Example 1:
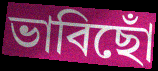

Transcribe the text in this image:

ভাবিছোঁ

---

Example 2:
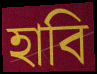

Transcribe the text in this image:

হাবি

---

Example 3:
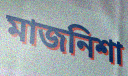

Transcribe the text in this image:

মাজনিশা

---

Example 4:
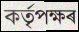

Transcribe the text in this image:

কৰ্তৃপক্ষৰ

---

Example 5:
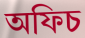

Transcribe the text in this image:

অফিচ